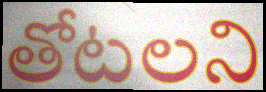
తోటలని